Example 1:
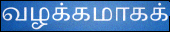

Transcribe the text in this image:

வழக்கமாகக்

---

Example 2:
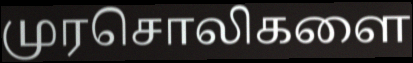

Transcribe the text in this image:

முரசொலிகளை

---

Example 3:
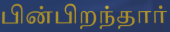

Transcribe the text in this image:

பின்பிறந்தார்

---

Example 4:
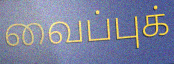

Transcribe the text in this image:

வைப்புக்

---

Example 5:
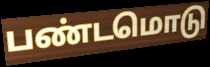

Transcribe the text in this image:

பண்டமொடு